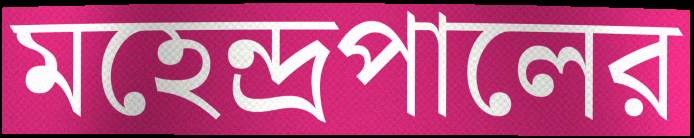
মহেন্দ্রপালের